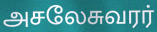
அசலேசுவரர்